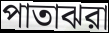
পাতাঝরা